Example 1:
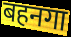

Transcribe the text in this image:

बहनगा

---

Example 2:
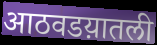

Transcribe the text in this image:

आठवडय़ातली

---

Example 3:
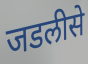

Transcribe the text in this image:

जडलीसे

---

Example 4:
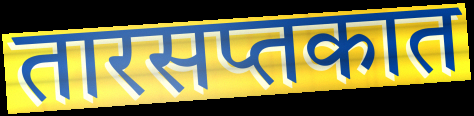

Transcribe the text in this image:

तारसप्तकात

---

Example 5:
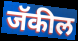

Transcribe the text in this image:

जॅकील